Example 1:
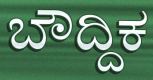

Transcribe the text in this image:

ಬೌದ್ದಿಕ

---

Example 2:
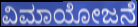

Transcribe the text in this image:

ವಿಮಾಯೋಜನೆ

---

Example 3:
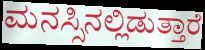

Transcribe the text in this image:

ಮನಸ್ಸಿನಲ್ಲಿಡುತ್ತಾರೆ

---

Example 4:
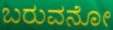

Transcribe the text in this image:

ಬರುವನೋ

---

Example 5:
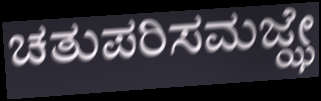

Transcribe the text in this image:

ಚತುಪರಿಸಮಜ್ಝೇ